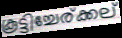
കൂട്ടിച്ചേര്ക്കല്